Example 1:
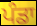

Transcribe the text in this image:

ਪੰਡਾ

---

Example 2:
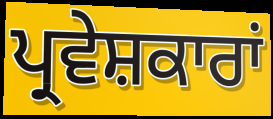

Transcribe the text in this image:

ਪ੍ਰਵੇਸ਼ਕਾਰਾਂ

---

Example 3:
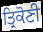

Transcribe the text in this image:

ਤ੍ਰਿਕੋਣੀ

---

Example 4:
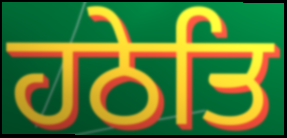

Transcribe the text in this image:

ਹਠੇਤਿ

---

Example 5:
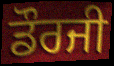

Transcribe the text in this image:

ਡੌਰਜੀ